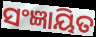
ସଂଜ୍ଞାୟିତ